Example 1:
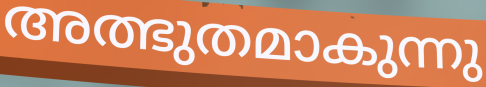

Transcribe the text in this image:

അത്ഭുതമാകുന്നു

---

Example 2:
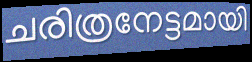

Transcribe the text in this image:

ചരിത്രനേട്ടമായി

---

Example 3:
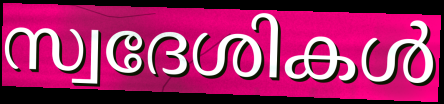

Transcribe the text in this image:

സ്വദേശികൾ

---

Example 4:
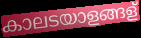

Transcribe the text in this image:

കാലടയാളങ്ങള്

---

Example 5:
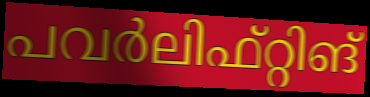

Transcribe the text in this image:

പവർലിഫ്റ്റിങ്